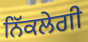
ਨਿੱਕਲੇਗੀ